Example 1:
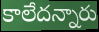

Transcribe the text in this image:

కాలేదన్నారు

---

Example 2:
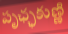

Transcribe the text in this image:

పృఛ్ఛకుణ్ణి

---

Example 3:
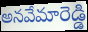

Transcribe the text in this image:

అనవేమారెడ్డి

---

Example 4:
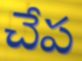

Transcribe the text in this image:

చేప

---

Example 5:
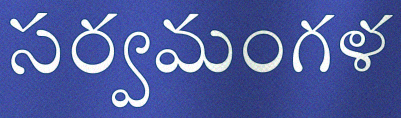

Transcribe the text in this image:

సర్వమంగళ